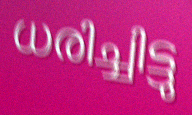
ധരിച്ചിട്ടു